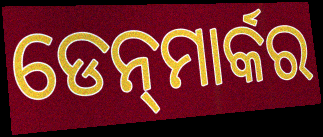
ଡେନ୍‍ମାର୍କର